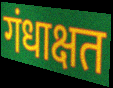
गंधाक्षत